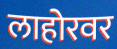
लाहोरवर